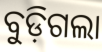
ବୁଡ଼ିଗଲା